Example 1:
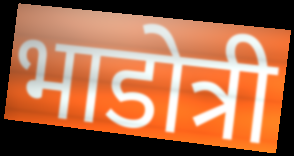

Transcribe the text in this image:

भाडोत्री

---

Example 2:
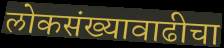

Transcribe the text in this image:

लोकसंख्यावाढीचा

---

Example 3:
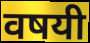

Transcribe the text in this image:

वषयी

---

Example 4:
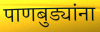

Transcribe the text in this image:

पाणबुड्यांना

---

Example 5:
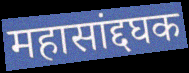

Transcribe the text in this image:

महासांद्दघक